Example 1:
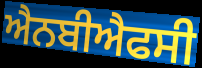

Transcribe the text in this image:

ਐਨਬੀਐਫਸੀ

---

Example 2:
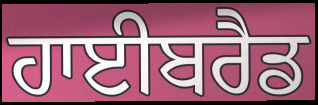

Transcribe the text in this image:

ਹਾਈਬਰੈਡ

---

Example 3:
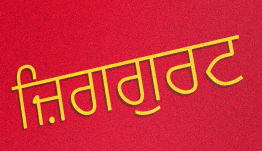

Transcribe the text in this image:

ਜ਼ਿਗਗੁਰਟ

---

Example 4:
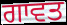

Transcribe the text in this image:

ਗਾਵਤ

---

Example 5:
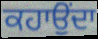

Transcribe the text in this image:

ਕਹਾਉਂਦਾ